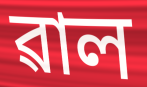
ৱাল